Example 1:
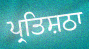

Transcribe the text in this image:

ਪ੍ਰਤਿਸ਼ਠਾ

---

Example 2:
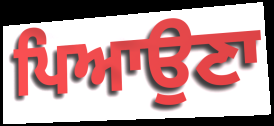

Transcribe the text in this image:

ਪਿਆਉਣਾ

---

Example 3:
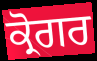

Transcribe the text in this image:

ਕ੍ਰੋਗਰ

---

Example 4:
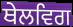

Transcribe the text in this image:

ਥੇਲਵਿਗ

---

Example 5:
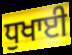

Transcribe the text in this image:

ਧੁਖਾਈ